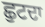
ਛੁਟਦਾ